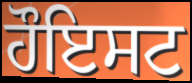
ਹੌਇਸਟ